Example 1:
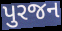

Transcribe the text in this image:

પુરજન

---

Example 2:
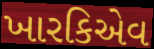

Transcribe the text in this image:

ખારકિએવ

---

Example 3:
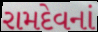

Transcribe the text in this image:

રામદેવનાં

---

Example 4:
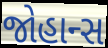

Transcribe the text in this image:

જોહાન્સ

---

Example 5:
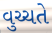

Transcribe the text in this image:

વુચ્ચતે